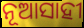
ନୂଆସାହୀ